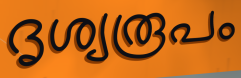
ദൃശ്യരൂപം